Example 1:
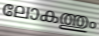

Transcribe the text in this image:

ലോകത്തും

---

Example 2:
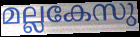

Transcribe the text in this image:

മല്ലകേസു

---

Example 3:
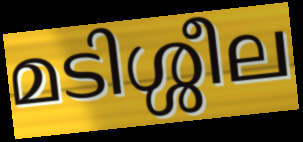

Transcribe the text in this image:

മടിശ്ശീല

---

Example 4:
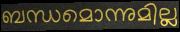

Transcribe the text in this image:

ബന്ധമൊന്നുമില്ല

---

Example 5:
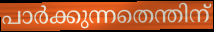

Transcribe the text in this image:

പാർക്കുന്നതെന്തിന്